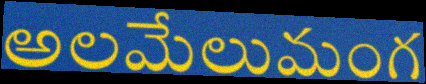
అలమేలుమంగ